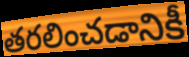
తరలించడానికీ